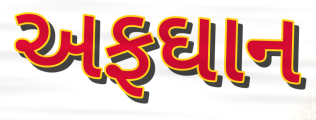
અફઘાન